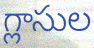
గ్లాసుల